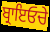
ਬ੍ਰਾਇਓਚੇ